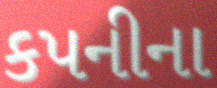
કપનીના